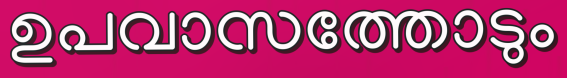
ഉപവാസത്തോടും